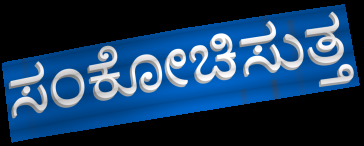
ಸಂಕೋಚಿಸುತ್ತ